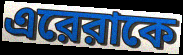
এরেরাকে